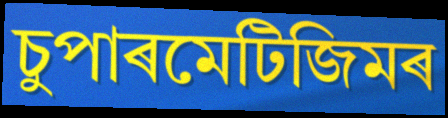
চুপাৰমেটিজিমৰ